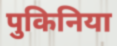
पुकिनिया